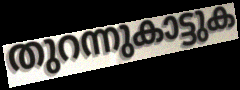
തുറന്നുകാട്ടുക